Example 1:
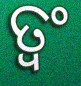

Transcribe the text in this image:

ତ୍ୱଂ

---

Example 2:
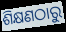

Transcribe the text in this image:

ଶିକ୍ଷଣଠାରୁ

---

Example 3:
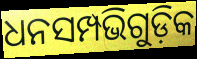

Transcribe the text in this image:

ଧନସମ୍ପଭିଗୁଡ଼ିକ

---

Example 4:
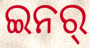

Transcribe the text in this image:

ଇନର୍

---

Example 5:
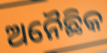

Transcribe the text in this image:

ଅନୈଛିକ